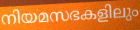
നിയമസഭകളിലും